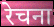
रेचना